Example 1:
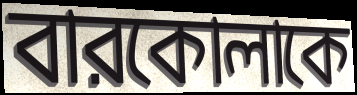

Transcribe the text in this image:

বারকোলাকে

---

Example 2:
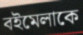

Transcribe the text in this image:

বইমেলাকে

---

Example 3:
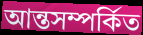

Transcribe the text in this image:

আন্তসম্পর্কিত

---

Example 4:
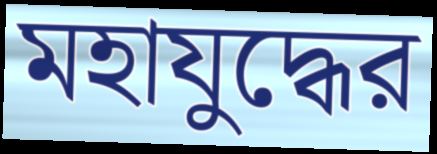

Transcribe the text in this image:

মহাযুদ্ধের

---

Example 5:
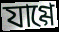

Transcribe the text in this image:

যাগ্গে